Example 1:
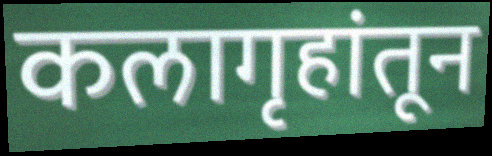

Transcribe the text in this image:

कलागृहांतून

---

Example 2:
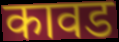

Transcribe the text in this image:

कावड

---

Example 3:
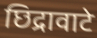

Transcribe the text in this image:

छिद्रावाटे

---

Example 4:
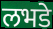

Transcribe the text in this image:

लभडे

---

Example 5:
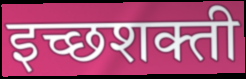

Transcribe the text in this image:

इच्छशक्ती